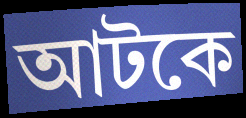
আটকে